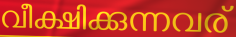
വീക്ഷിക്കുന്നവര്